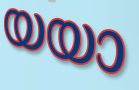
യയാ